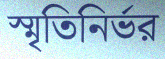
স্মৃতিনির্ভর